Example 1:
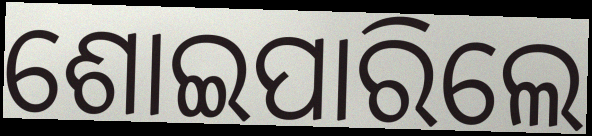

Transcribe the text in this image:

ଶୋଇପାରିଲେ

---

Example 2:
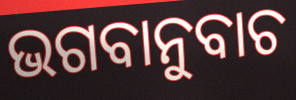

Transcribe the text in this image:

ଭଗବାନୁବାଚ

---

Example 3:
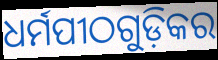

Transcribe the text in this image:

ଧର୍ମପୀଠଗୁଡ଼ିକର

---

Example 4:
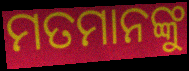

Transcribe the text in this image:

ମତମାନଙ୍କୁ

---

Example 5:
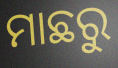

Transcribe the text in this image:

ମାଛରୁ